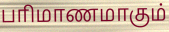
பரிமாணமாகும்